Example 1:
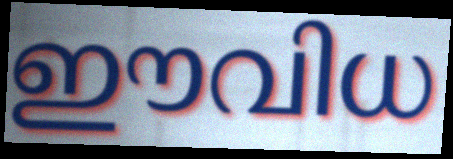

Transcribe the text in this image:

ഈവിധ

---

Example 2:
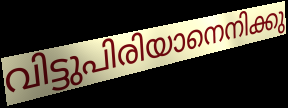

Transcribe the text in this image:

വിട്ടുപിരിയാനെനിക്കു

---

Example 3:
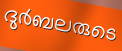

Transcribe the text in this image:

ദുർബലരുടെ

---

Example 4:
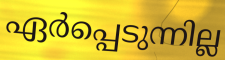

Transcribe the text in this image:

ഏർപ്പെടുന്നില്ല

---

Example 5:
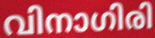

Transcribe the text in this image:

വിനാഗിരി